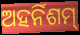
ଅହର୍ନିଶମ୍